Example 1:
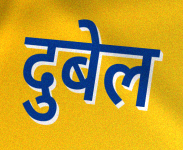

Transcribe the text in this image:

दुबेल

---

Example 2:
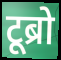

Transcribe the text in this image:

टूब्रो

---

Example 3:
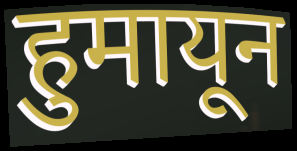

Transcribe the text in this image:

हुमायून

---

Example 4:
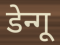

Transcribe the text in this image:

डेन्गू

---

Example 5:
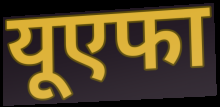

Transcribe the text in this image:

यूएफा